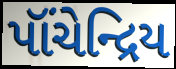
પૉંચેન્દ્રિય